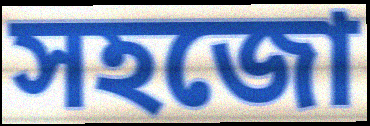
সহজো